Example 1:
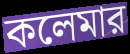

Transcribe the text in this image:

কলেমার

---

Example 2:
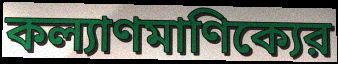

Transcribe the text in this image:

কল্যাণমাণিক্যের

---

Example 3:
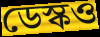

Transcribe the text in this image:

ডেস্কও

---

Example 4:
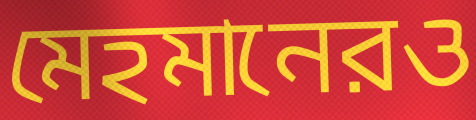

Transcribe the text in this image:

মেহমানেরও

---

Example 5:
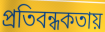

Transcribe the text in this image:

প্রতিবন্ধকতায়